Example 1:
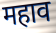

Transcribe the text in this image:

महाव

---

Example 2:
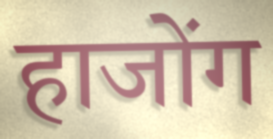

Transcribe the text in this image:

हाजोंग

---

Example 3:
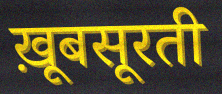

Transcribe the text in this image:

ख़ूबसूरती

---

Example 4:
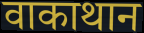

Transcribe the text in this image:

वाकाथान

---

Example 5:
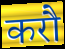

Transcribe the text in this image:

करौ